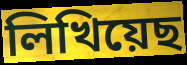
লিখিয়েছ